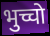
भुच्चो